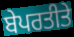
ਬੇਪਰਤੀਤੇ